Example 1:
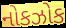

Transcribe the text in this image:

નોકઝોક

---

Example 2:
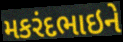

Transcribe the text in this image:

મકરંદભાઇને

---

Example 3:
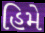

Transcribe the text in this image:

હિમે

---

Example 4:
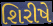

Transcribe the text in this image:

શિરીષે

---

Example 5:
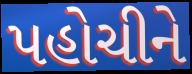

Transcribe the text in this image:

પહોચીને